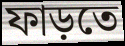
ফাড়তে